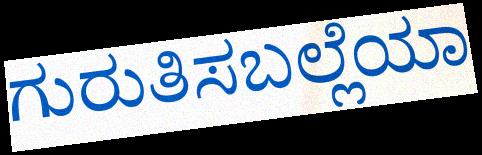
ಗುರುತಿಸಬಲ್ಲೆಯಾ